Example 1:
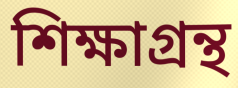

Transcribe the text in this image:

শিক্ষাগ্রন্থ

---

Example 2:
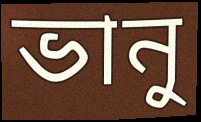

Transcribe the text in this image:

ভানু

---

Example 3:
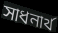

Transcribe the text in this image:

সাধনার্থ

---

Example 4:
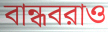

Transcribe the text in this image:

বান্ধবরাও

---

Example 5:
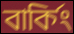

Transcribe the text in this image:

বার্কিং